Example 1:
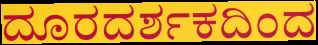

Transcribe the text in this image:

ದೂರದರ್ಶಕದಿಂದ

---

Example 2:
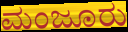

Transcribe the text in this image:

ಮಂಜೂರು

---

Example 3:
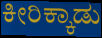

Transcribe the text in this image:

ಕೀರಿಕ್ಕಾಡು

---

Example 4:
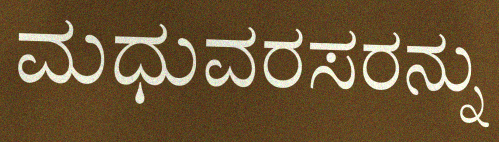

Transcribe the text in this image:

ಮಧುವರಸರನ್ನು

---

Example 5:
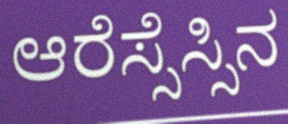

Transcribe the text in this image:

ಆರೆಸ್ಸೆಸ್ಸಿನ